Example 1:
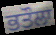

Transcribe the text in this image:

ਭਤੌਲਾ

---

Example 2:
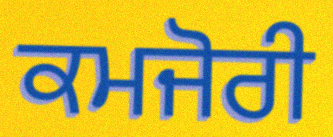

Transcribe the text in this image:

ਕਮਜੋਰੀ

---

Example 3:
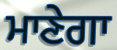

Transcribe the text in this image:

ਮਾਣੇਗਾ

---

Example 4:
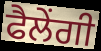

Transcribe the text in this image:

ਫੈਲੇਂਗੀ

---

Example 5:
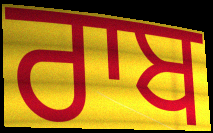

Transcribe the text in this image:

ਰਾਬ